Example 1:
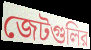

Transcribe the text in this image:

জেটগুলির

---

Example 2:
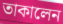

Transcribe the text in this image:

তাকালেন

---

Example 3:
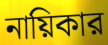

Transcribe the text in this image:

নায়িকার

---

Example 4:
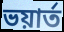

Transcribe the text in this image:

ভয়ার্ত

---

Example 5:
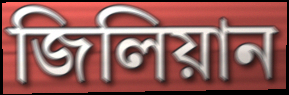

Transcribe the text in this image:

জিলিয়ান